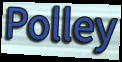
Polley